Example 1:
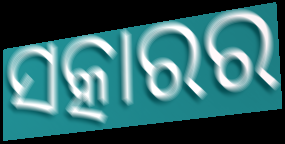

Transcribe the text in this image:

ସତ୍କାରର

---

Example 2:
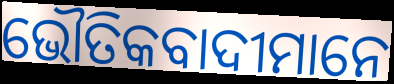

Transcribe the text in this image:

ଭୌତିକବାଦୀମାନେ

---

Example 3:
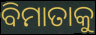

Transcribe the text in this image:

ବିମାତାକୁ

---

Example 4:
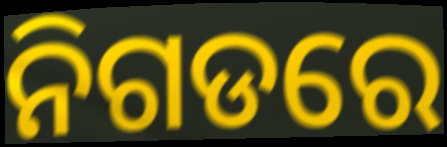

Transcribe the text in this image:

ନିଗଡରେ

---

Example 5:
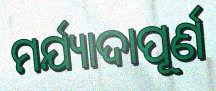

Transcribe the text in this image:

ମର୍ଯ୍ୟାଦାପୂର୍ଣ